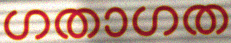
ഗതാഗത